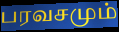
பரவசமும்